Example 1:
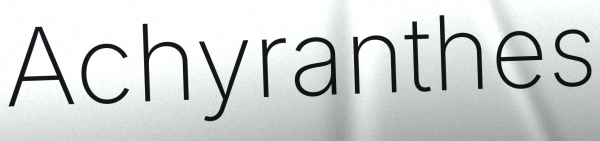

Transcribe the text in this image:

Achyranthes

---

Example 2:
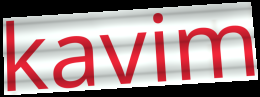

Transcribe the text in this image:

kavim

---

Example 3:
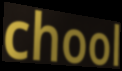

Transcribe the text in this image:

chool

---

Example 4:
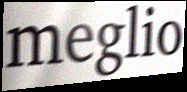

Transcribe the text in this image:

meglio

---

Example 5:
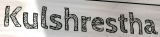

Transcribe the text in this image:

Kulshrestha